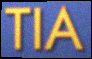
TIA